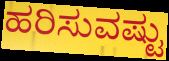
ಹರಿಸುವಷ್ಟು